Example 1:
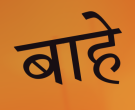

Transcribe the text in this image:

बाहे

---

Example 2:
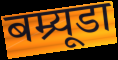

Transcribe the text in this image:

बम्र्यूडा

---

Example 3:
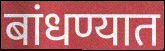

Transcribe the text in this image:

बांधण्यात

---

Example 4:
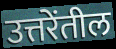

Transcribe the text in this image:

उत्तरेंतील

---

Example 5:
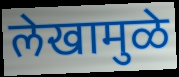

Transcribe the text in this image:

लेखामुळे